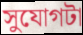
সুযোগটা